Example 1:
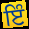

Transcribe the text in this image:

ਇੰ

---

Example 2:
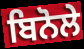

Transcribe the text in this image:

ਬਿਨੋਲੇ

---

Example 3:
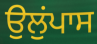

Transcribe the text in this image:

ਉਲੁਂਪਾਸ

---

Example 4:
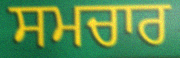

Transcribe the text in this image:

ਸਮਚਾਰ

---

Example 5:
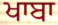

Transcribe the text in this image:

ਖਾਬਾ